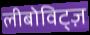
लीबोविट्ज़